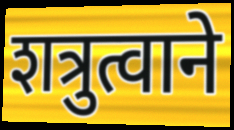
शत्रुत्वाने